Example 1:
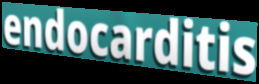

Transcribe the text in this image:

endocarditis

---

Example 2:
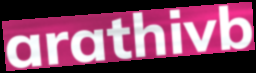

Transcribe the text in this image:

arathivb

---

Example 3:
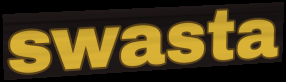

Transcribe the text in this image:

swasta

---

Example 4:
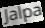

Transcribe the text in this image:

Jalpa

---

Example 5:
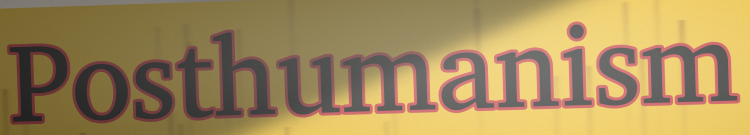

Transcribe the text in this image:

Posthumanism